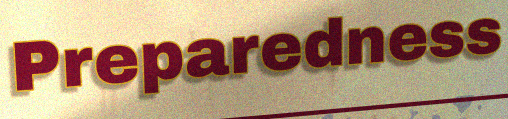
Preparedness